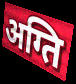
अग्ति